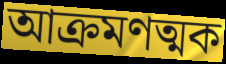
আক্রমণত্মক